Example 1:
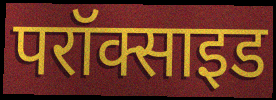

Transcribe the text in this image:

परॉक्साइड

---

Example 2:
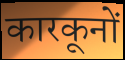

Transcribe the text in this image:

कारकूनों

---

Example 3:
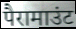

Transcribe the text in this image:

पैरामाउंट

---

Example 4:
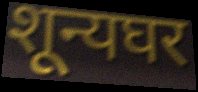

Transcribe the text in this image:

शून्यघर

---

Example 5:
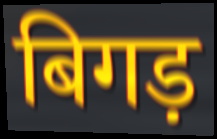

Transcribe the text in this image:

बिगड़